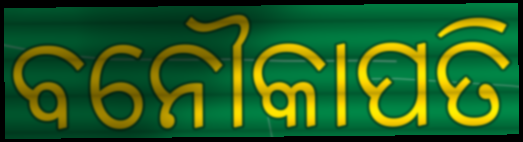
ବନୌକାପତି